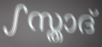
ഽസ്താദ്